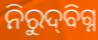
ନିରୁଦ୍‍ବିଗ୍ନ